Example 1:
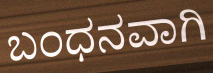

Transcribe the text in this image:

ಬಂಧನವಾಗಿ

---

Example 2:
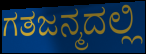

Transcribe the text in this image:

ಗತಜನ್ಮದಲ್ಲಿ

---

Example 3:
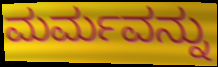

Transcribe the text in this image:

ಮರ್ಮವನ್ನು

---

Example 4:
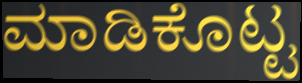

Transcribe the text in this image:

ಮಾಡಿಕೊಟ್ಟ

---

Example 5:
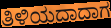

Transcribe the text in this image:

ತಿಳಿಯದಾದಾಗ